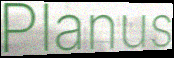
Planus